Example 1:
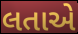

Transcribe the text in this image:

લતાએ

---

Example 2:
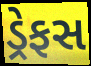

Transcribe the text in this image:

ડ્રેફસ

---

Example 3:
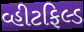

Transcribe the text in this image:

વ્હીટફિલ્ડ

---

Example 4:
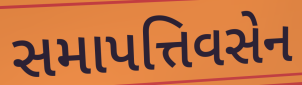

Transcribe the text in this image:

સમાપત્તિવસેન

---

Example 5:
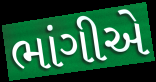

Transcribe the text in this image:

ભાંગીએ